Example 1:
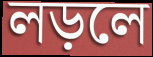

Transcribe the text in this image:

লড়লে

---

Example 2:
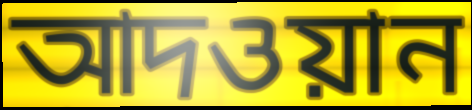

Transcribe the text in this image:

আদওয়ান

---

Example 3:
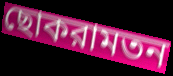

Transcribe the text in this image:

ছোকরামতন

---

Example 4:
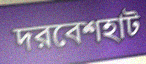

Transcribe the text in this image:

দরবেশহাট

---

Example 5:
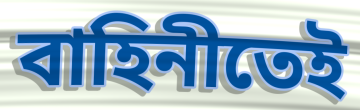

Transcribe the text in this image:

বাহিনীতেই